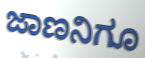
ಜಾಣನಿಗೂ